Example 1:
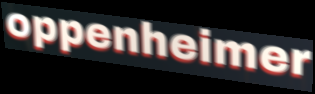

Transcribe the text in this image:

oppenheimer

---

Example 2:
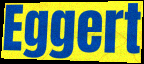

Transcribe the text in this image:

Eggert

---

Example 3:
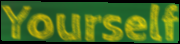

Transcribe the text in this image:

Yourself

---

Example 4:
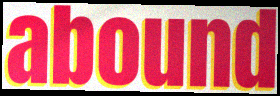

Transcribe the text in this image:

abound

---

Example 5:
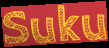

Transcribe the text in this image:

Suku